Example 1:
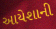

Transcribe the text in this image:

આયેશાની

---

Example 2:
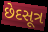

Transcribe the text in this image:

છેદસૂત્ર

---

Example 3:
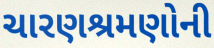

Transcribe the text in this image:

ચારણશ્રમણોની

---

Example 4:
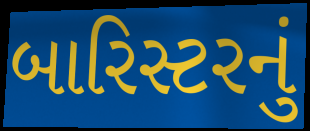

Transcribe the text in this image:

બારિસ્ટરનું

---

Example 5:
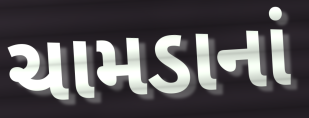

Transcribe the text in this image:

ચામડાનાં